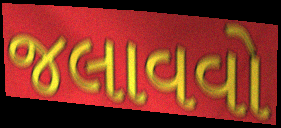
જલાવવો